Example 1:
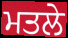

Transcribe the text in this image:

ਮਤਲੇ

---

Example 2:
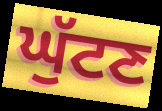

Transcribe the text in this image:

ਘੁੱਟਣ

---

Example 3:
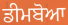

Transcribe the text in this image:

ਡੀਮਬੋਆ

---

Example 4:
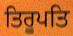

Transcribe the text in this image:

ਤਿਰੂਪਤਿ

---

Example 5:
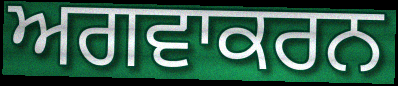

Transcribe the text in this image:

ਅਗਵਾਕਰਨ